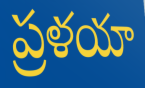
ప్రళయా